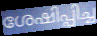
ശേഷിപ്പിച്ച